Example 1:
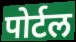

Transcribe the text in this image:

पोर्टल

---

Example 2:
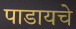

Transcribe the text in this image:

पाडायचे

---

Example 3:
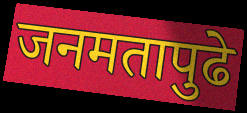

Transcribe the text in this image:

जनमतापुढे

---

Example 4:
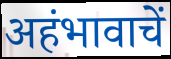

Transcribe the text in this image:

अहंभावाचें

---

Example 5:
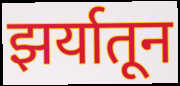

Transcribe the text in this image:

झर्यातून